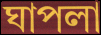
ঘাপলা